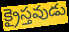
క్రైస్తవుడు